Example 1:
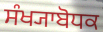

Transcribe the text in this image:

ਸੰਖ੍ਯਾਬੋਧਕ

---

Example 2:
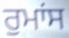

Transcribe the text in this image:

ਰੁਮਾਂਸ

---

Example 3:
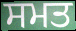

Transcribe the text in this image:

ਸਮਤ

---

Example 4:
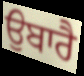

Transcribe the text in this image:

ਉਬਾਰੈ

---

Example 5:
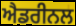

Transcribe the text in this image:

ਐਡਰੀਨਲ